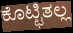
ಕೊಟ್ಟಿತಲ್ಲ